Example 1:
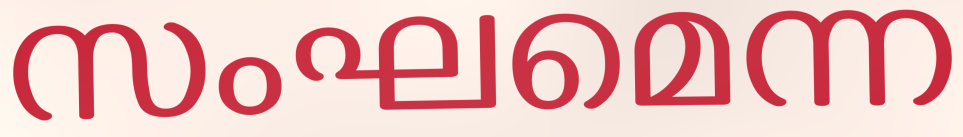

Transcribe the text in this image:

സംഘമെന്ന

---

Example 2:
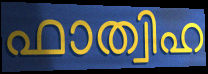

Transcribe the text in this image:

ഫാത്വിഹ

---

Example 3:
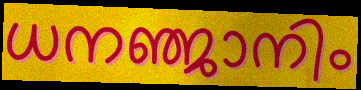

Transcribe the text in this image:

ധനഞ്ജാനിം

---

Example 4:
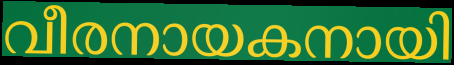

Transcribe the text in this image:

വീരനായകനായി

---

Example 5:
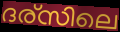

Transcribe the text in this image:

ദര്സിലെ